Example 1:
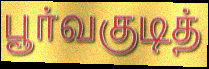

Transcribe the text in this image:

பூர்வகுடித்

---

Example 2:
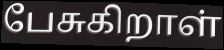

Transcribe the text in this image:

பேசுகிறாள்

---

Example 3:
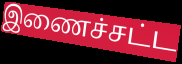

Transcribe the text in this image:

இணைச்சட்ட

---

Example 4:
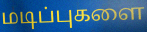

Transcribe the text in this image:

மடிப்புகளை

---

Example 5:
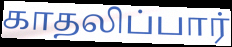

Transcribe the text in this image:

காதலிப்பார்